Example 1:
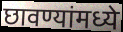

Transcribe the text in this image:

छावण्यांमध्ये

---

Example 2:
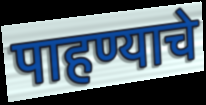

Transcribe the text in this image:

पाहण्याचे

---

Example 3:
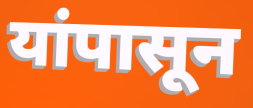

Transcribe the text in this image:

यांपासून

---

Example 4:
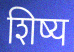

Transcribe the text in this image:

शिष्य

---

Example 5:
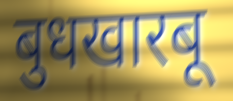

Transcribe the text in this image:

बुधखारबू